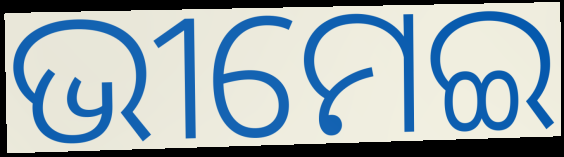
ଭୀମେଇ